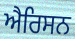
ਐਰਿਸਨ